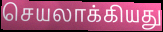
செயலாக்கியது